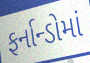
ફર્નાન્ડોમાં